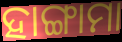
ହାଙ୍ଗାମା